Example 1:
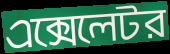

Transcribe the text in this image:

এক্সেলেটর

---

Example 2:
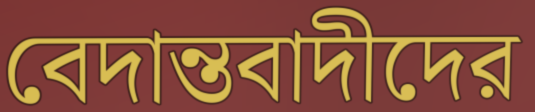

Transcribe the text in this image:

বেদান্তবাদীদের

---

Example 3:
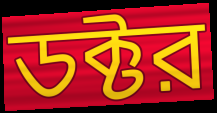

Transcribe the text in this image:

ডক্টর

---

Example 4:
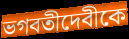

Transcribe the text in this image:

ভগবতীদেবীকে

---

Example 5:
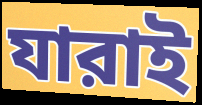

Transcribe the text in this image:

যারাই